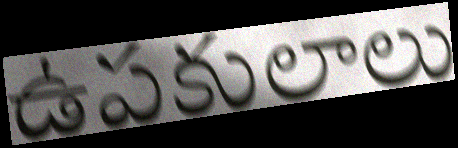
ఉపకులాలు